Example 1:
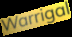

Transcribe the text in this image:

Warrigal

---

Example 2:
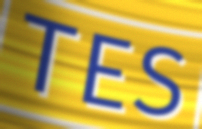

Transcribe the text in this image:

TES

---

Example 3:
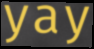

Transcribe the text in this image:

yay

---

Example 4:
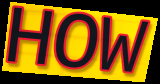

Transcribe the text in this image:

HOW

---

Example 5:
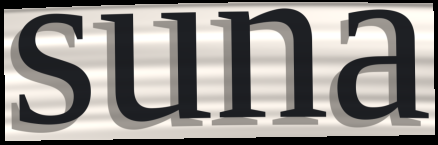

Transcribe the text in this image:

suna